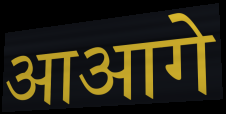
आआगे